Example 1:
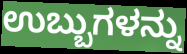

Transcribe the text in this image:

ಉಬ್ಬುಗಳನ್ನು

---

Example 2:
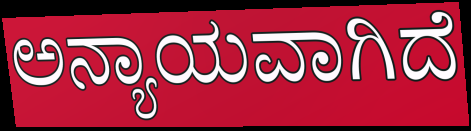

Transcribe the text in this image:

ಅನ್ಯಾಯವಾಗಿದೆ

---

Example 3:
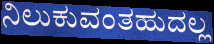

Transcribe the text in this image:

ನಿಲುಕುವಂತಹುದಲ್ಲ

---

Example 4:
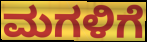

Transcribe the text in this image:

ಮಗಳಿಗೆ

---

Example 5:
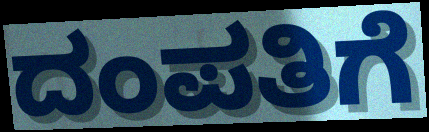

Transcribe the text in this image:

ದಂಪತಿಗೆ